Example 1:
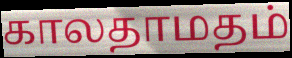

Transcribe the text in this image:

காலதாமதம்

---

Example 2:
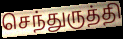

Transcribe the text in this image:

செந்துருத்தி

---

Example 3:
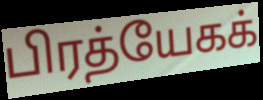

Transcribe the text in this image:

பிரத்யேகக்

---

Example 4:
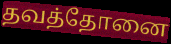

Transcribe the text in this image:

தவத்தோனை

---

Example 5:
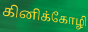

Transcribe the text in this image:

கினிக்கோழி